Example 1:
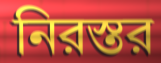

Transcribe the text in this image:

নিরস্তর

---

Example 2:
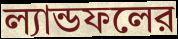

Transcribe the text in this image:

ল্যান্ডফলের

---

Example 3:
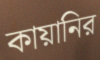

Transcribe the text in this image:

কায়ানির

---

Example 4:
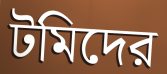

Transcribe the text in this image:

টমিদের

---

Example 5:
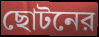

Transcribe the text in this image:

ছোটনের